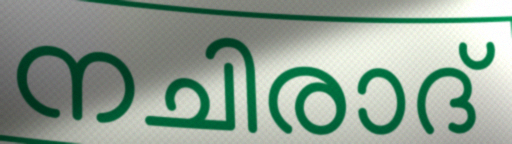
നചിരാദ്